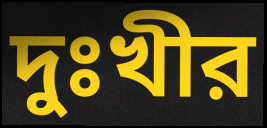
দুঃখীর